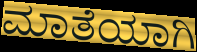
ಮಾತೆಯಾಗಿ